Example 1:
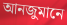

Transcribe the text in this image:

আনজুমানে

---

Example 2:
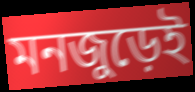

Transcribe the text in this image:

মনজুড়েই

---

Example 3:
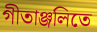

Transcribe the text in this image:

গীতাঞ্জলিতে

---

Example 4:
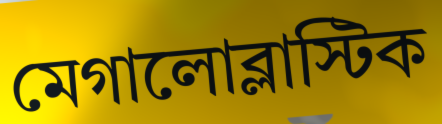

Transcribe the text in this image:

মেগালোব্লাস্টিক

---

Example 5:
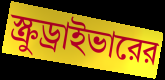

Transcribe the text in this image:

স্ক্রুড্রাইভারের